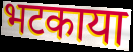
भटकाया